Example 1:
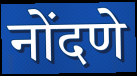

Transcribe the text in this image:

नोंदणे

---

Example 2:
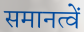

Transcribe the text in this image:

समानत्वें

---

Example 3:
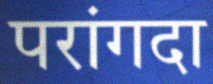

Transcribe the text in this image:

परांगदा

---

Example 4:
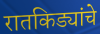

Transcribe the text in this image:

रातकिड्यांचे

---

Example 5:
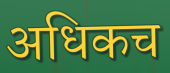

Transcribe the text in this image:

अधिकच